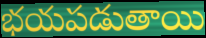
భయపడుతాయి